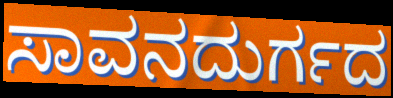
ಸಾವನದುರ್ಗದ